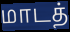
மாடத்